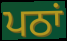
ਪਠਾਂ